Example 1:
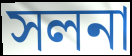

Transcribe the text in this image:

সলনা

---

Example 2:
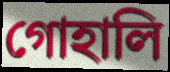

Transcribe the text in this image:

গোহালি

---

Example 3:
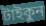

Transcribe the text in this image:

টাইকুন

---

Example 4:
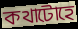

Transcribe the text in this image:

কথাটোহে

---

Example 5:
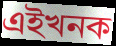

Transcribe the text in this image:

এইখনক